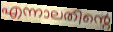
എന്നാലതിന്റെ